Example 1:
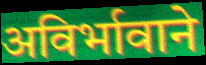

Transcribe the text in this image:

अविर्भावाने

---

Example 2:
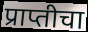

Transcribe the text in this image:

प्राप्तीचा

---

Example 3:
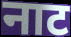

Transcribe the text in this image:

नाट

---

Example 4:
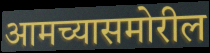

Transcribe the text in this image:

आमच्यासमोरील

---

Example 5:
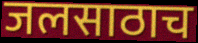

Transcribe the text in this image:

जलसाठाच